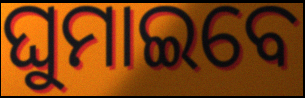
ଘୁମାଇବେ